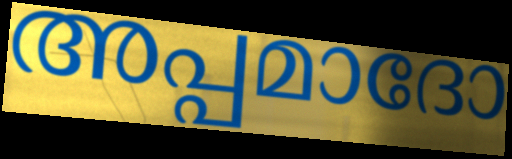
അപ്പമാദോ